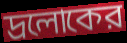
দ্রলোকের